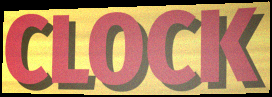
CLOCK